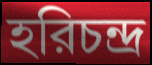
হরিচন্দ্র